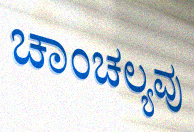
ಚಾಂಚಲ್ಯವು